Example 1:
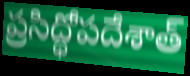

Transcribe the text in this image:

ప్రసిద్ధోపదేశాత్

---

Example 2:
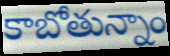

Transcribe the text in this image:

కాబోతున్నాం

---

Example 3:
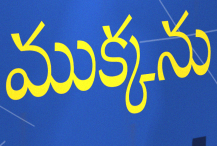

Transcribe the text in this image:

ముక్కను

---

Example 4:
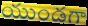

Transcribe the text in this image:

యుండగా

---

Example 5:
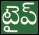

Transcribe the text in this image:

టైప్